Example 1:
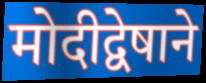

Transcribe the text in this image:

मोदीद्वेषाने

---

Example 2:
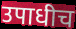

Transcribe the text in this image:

उपाधीच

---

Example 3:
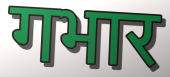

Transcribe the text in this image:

गभार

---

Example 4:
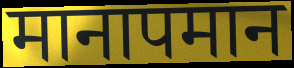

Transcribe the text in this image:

मानापमान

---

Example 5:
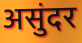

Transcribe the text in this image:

असुंदर